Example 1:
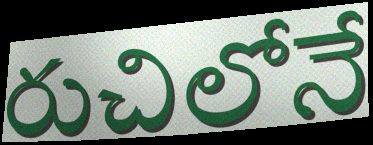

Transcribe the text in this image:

రుచిలోనే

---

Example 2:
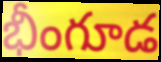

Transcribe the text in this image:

భీంగూడ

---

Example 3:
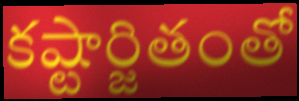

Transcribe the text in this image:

కష్టార్జితంతో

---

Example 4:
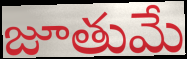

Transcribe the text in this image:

జూతుమే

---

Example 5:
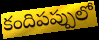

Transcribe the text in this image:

కందిపప్పులో